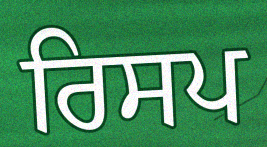
ਰਿਸਪ